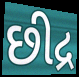
છીદ્ર